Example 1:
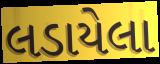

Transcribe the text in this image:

લડાયેલા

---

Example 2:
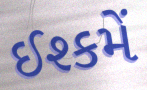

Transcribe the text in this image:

ઈશ્કમેં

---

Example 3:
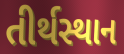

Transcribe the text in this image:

તીર્થસ્થાન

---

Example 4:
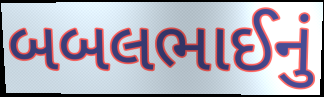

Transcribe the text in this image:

બબલભાઈનું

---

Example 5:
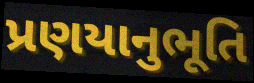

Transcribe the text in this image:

પ્રણયાનુભૂતિ